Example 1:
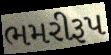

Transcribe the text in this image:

ભમરીરૂપ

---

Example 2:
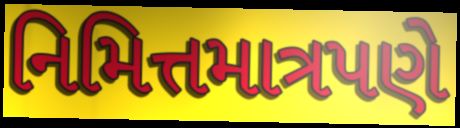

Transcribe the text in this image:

નિમિત્તમાત્રપણે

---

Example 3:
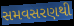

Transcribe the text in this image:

સમવસરણથી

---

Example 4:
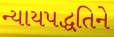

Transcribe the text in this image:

ન્યાયપદ્ધતિને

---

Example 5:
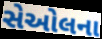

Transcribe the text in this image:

સેઓલના